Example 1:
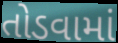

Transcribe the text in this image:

તોડવામાં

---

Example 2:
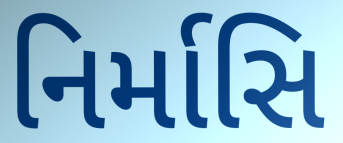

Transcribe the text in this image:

નિર્માસિ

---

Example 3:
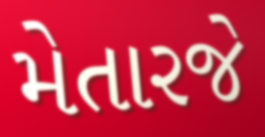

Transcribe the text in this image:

મેતારજે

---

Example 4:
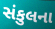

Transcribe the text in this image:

સંકુલના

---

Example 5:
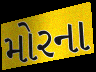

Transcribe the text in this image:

મોરના